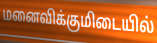
மனைவிக்குமிடையில்